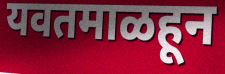
यवतमाळहून